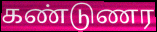
கண்டுணர